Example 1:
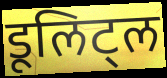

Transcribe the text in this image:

डूलिट्ल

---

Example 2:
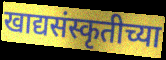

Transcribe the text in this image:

खाद्यसंस्कृतीच्या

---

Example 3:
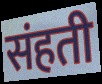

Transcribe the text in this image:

संहती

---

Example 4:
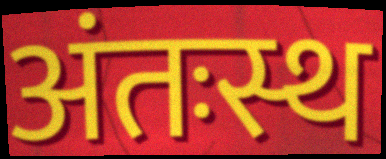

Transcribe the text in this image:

अंतःस्थ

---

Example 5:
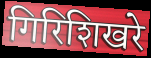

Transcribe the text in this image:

गिरिशिखरे